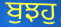
ਬੁਝਹੁ